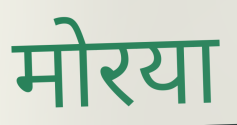
मोरया